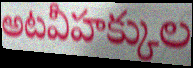
అటవీహక్కుల